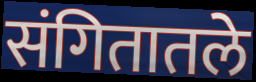
संगितातले